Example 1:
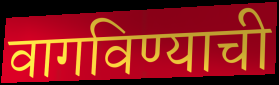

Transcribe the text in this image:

वागविण्याची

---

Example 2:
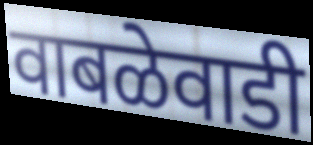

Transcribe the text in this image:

वाबळेवाडी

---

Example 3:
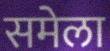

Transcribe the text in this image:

समेला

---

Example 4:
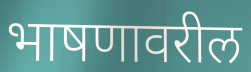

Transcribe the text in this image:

भाषणावरील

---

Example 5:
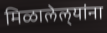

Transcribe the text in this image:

मिळालेल्यांना